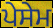
ਪੇਸੇਮ